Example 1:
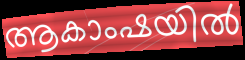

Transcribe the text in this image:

ആകാംഷയിൽ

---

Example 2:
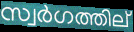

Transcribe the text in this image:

സ്വർഗത്തില്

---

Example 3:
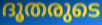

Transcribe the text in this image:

ദൂതരുടെ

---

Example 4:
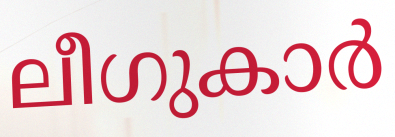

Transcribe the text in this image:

ലീഗുകാർ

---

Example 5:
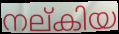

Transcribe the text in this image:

നല്കിയ